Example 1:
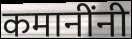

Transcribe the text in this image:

कमानींनी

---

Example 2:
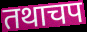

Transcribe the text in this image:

तथाचप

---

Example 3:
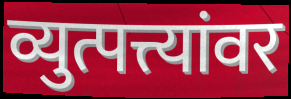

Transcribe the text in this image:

व्युत्पत्त्यांवर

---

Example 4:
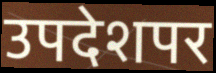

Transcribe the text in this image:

उपदेशपर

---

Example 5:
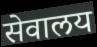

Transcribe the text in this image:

सेवालय